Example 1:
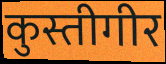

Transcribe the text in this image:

कुस्तीगीर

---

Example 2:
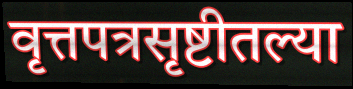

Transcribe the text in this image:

वृत्तपत्रसृष्टीतल्या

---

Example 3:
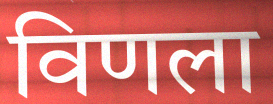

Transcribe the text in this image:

विणला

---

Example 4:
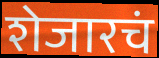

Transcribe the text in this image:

शेजारचं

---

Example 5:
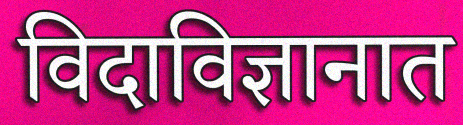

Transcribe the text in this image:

विदाविज्ञानात